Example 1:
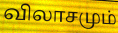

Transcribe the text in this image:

விலாசமும்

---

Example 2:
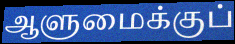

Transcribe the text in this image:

ஆளுமைக்குப்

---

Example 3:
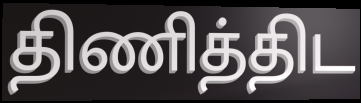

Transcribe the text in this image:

திணித்திட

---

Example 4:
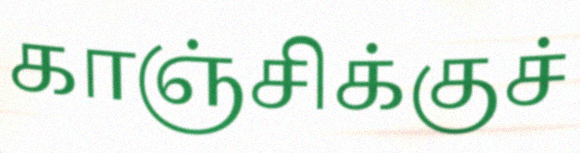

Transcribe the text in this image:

காஞ்சிக்குச்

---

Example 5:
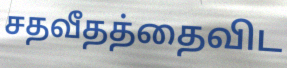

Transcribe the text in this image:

சதவீதத்தைவிட